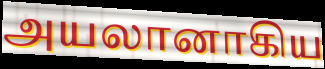
அயலானாகிய